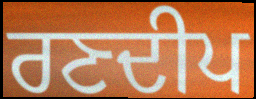
ਰਣਦੀਪ